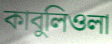
কাবুলিওলা